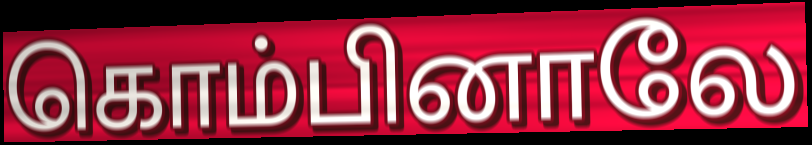
கொம்பினாலே